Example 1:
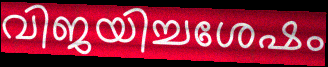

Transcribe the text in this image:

വിജയിച്ചശേഷം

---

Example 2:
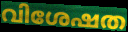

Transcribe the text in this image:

വിശേഷത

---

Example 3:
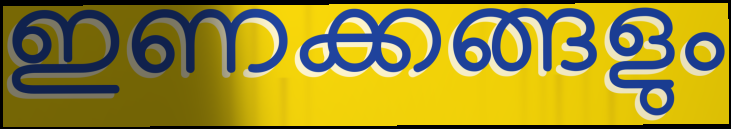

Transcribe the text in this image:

ഇണക്കങ്ങളും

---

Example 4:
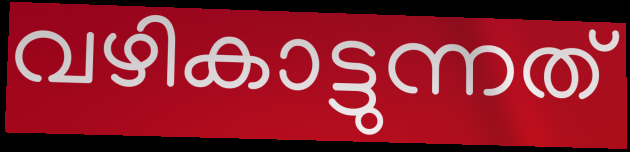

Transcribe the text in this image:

വഴികാട്ടുന്നത്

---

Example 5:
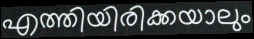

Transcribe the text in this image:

എത്തിയിരിക്കയാലും